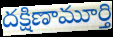
దక్షిణామూర్తి